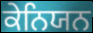
ਕੇਨਿਯਨ